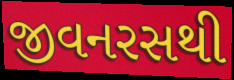
જીવનરસથી